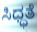
ಸಿಧ್ಧತೆ